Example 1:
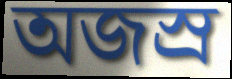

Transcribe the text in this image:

অজস্র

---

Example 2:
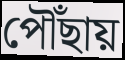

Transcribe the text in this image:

পৌঁছায়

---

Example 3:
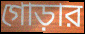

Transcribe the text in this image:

গোড়ার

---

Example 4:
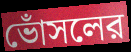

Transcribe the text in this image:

ভোঁসলের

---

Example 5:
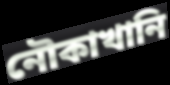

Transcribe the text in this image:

নৌকাখানি